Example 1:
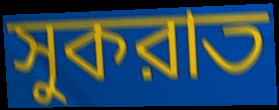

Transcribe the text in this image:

সুকরাত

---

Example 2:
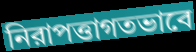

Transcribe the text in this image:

নিরাপত্তাগতভাবে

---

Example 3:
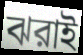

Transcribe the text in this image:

ঝরাই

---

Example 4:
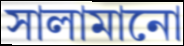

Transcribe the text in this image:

সালামানো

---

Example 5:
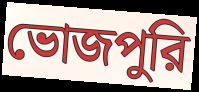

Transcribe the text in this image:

ভোজপুরি